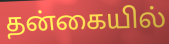
தன்கையில்